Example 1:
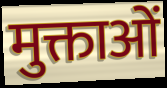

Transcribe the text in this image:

मुक्ताओं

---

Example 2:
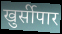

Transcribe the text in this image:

खुर्सीपार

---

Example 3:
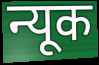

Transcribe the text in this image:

न्यूक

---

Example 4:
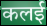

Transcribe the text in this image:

कलई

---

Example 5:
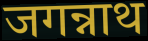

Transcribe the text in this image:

जगन्नाथ